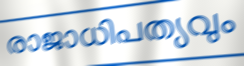
രാജാധിപത്യവും